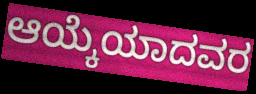
ಆಯ್ಕೆಯಾದವರ